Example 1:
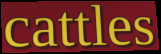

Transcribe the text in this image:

cattles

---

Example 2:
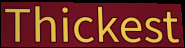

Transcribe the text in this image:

Thickest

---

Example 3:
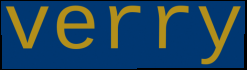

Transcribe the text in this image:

verry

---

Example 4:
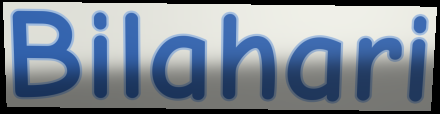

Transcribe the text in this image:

Bilahari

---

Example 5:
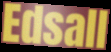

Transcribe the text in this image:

Edsall